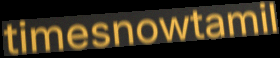
timesnowtamil